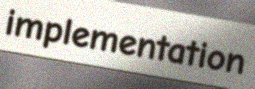
implementation